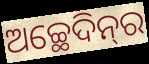
ଅଚ୍ଛେଦିନ୍‌ର